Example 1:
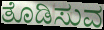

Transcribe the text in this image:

ತೊಡಿಸುವ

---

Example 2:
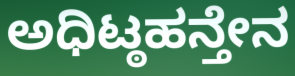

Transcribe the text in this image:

ಅಧಿಟ್ಠಹನ್ತೇನ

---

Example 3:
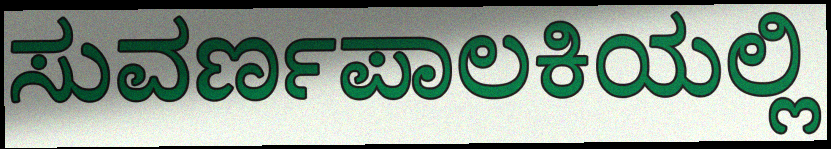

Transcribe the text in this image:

ಸುವರ್ಣಪಾಲಕಿಯಲ್ಲಿ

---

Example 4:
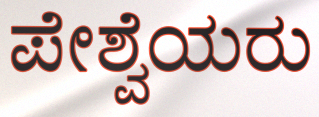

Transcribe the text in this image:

ಪೇಶ್ವೆಯರು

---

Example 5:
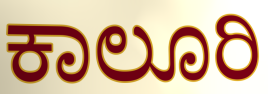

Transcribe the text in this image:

ಕಾಲೂರಿ